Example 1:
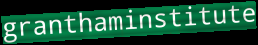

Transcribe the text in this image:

granthaminstitute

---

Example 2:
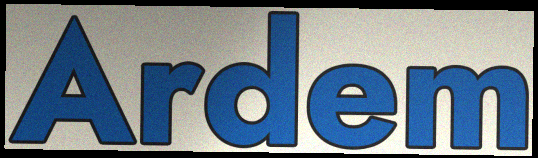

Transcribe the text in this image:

Ardem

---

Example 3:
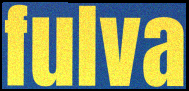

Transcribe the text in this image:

fulva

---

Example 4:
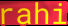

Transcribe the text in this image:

rahi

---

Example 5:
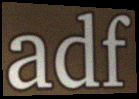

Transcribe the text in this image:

adf